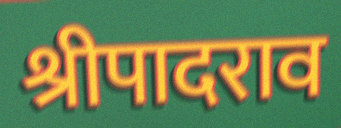
श्रीपादराव